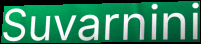
Suvarnini